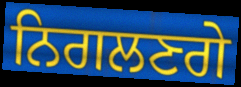
ਨਿਗਲਣਗੇ